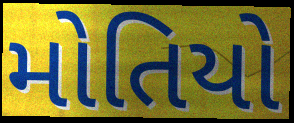
મોતિયો